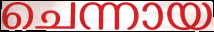
ചെന്നായ